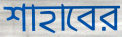
শাহাবের